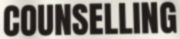
COUNSELLING